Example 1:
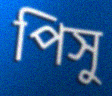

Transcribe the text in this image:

পিসু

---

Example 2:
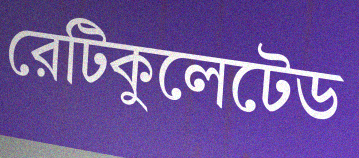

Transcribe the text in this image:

রেটিকুলেটেড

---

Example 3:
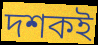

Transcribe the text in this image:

দশকই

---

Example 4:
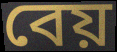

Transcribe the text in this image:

বেয়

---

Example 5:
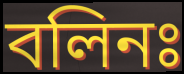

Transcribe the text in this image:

বলিনঃ